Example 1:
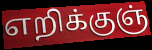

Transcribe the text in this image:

எறிக்குஞ்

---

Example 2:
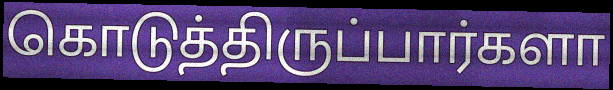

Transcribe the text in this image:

கொடுத்திருப்பார்களா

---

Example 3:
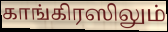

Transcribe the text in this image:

காங்கிரஸிலும்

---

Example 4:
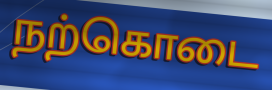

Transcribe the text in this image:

நற்கொடை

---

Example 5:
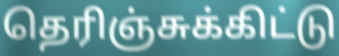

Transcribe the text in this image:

தெரிஞ்சுக்கிட்டு